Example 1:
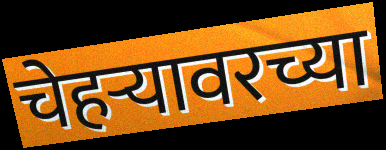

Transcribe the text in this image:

चेहर्‍यावरच्या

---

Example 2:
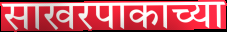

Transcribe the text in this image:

साखरपाकाच्या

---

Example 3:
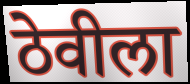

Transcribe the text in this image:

ठेवीला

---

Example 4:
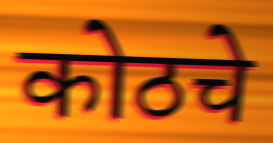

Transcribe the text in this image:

कोठचे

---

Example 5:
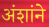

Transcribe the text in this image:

अंशांने